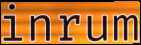
inrum